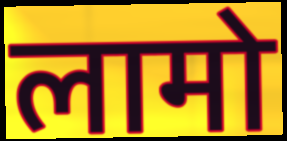
लामो